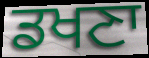
ਡਖਣਾ